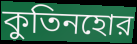
কুতিনহোর